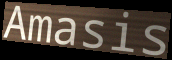
Amasis